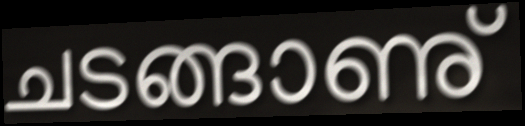
ചടങ്ങാണു്